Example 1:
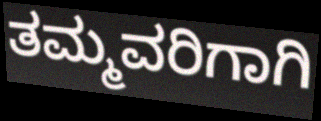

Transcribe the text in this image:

ತಮ್ಮವರಿಗಾಗಿ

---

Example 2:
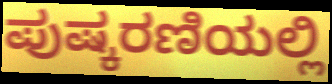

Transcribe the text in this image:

ಪುಷ್ಕರಣಿಯಲ್ಲಿ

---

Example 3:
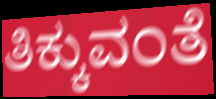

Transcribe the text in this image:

ತಿಕ್ಕುವಂತೆ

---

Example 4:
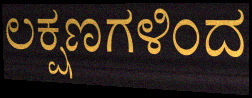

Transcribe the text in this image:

ಲಕ್ಷಣಗಳಿಂದ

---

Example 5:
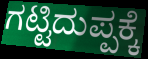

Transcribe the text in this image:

ಗಟ್ಟಿದುಪ್ಪಕ್ಕೆ